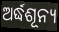
ଅର୍ଦ୍ଧଶୂନ୍ୟ